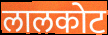
लालकोट